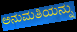
ಅನುಮತಿಯನ್ನು